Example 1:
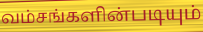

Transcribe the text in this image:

வம்சங்களின்படியும்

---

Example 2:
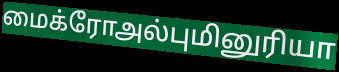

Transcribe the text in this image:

மைக்ரோஅல்புமினுரியா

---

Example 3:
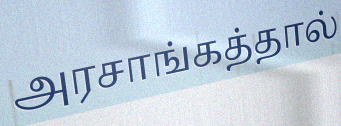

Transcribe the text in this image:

அரசாங்கத்தால்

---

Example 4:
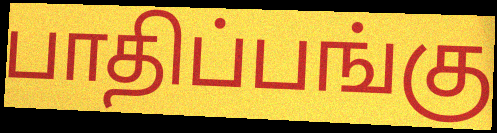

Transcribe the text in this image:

பாதிப்பங்கு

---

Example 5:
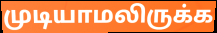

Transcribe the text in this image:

முடியாமலிருக்க